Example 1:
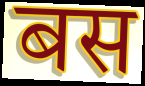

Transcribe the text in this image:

बस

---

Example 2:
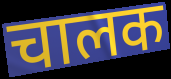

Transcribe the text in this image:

चालक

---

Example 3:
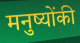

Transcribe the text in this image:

मनुष्योंकी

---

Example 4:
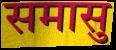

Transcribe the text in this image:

समासु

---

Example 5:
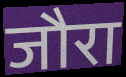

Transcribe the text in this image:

जौरा